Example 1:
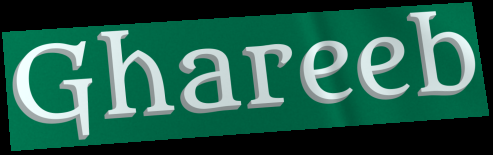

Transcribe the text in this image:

Ghareeb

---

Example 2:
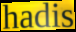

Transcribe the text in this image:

hadis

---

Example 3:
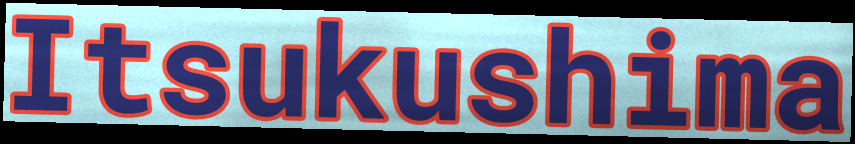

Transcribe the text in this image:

Itsukushima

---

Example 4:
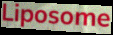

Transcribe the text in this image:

Liposome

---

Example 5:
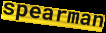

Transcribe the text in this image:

spearman